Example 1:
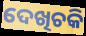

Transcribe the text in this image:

ଦେଖିଚକି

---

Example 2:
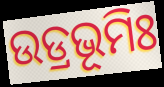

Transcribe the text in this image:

ଉଡ୍ରଭୂମିଃ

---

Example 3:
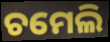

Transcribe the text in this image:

ଚମେଲି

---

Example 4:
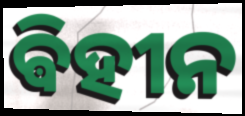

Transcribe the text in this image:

ଵିହୀନ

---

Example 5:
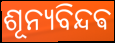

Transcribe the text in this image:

ଶୂନ୍ଯବିନ୍ଦଵ